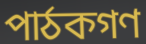
পাঠকগণ